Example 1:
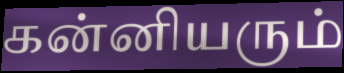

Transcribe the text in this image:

கன்னியரும்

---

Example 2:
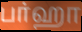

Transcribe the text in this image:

பர்ஹா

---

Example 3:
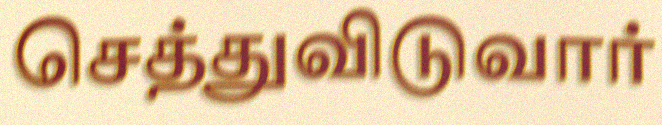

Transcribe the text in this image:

செத்துவிடுவார்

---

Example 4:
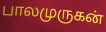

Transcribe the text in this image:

பாலமுருகன்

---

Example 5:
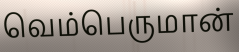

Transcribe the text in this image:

வெம்பெருமான்